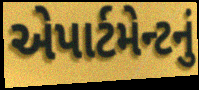
એપાર્ટમેન્ટનું